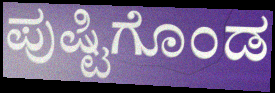
ಪುಷ್ಟಿಗೊಂಡ